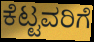
ಕೆಟ್ಟವರಿಗೆ